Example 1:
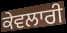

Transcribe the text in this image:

ਕੇਵਲਾਰੀ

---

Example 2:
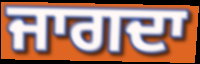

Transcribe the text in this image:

ਜਾਗਦਾ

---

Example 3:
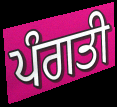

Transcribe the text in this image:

ਪੰਗਤੀ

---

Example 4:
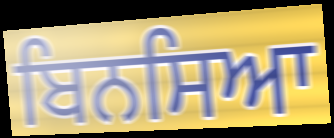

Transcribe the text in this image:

ਬਿਨਸਿਆ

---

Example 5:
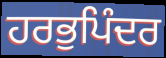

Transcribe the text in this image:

ਹਰਭੁਪਿੰਦਰ